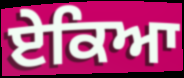
ਏਕਿਆ